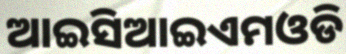
ଆଇସିଆଇଏମଓଡି